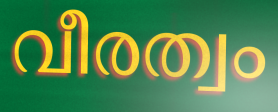
വീരത്വം